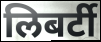
लिबर्टी